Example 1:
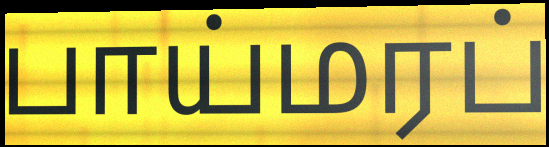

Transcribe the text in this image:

பாய்மரப்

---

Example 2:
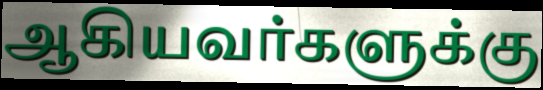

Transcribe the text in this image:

ஆகியவர்களுக்கு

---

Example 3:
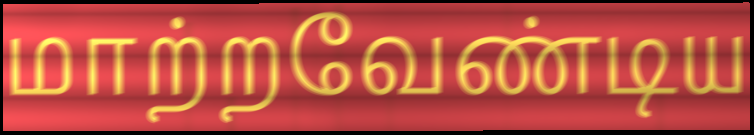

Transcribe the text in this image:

மாற்றவேண்டிய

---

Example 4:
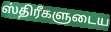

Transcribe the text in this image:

ஸ்திரீகளுடைய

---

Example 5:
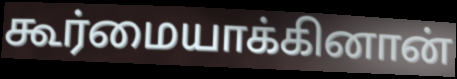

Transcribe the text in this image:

கூர்மையாக்கினான்